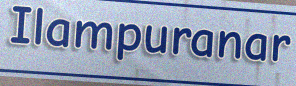
Ilampuranar